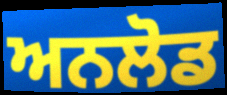
ਅਨਲੋਡ